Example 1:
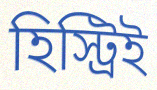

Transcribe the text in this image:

হিস্ট্রিই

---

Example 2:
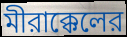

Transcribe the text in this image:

মীরাক্কেলের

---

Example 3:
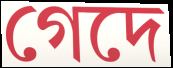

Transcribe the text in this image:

গেদে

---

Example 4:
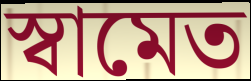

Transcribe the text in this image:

স্বামেত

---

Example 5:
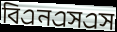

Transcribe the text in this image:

বিএনএসএস